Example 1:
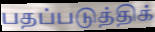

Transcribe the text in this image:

பதப்படுத்திக்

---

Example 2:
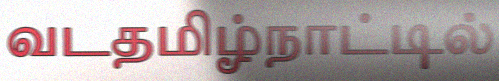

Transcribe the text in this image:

வடதமிழ்நாட்டில்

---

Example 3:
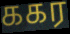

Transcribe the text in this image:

ககர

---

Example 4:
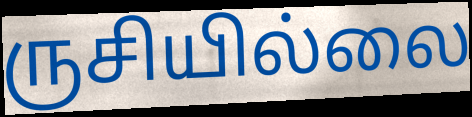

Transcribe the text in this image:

ருசியில்லை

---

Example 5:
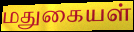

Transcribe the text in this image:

மதுகையள்